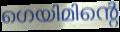
ഗെയിമിന്റെ